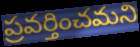
ప్రవర్తించమని